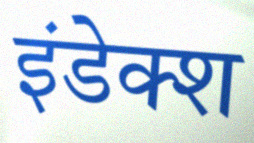
इंडेक्श